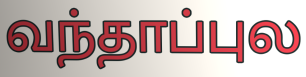
வந்தாப்புல